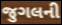
જુગલની